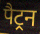
पैट्रन